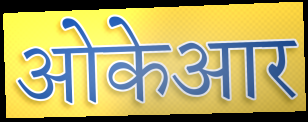
ओकेआर